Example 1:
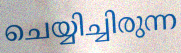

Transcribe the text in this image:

ചെയ്യിച്ചിരുന്ന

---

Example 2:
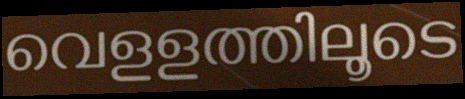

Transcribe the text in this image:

വെളളത്തിലൂടെ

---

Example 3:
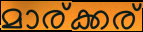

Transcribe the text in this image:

മാര്ക്കര്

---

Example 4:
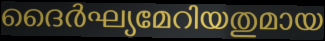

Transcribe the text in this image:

ദൈർഘ്യമേറിയതുമായ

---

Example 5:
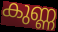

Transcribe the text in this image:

കുണ്ണ